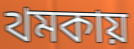
থমকায়